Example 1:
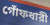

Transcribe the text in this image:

গোঁফধারী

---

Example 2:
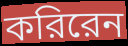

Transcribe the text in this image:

করিরেন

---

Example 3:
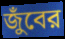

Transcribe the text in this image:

জুঁবের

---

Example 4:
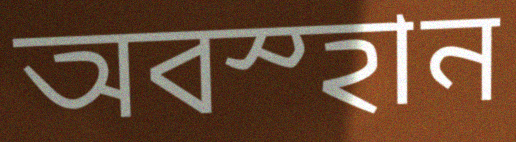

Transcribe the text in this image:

অবস্হান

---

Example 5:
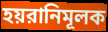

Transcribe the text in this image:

হয়রানিমূলক